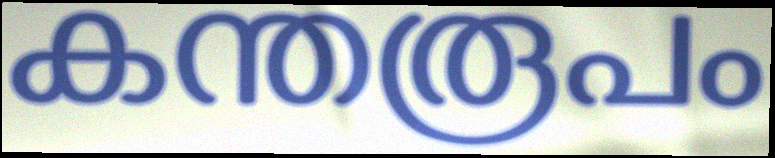
കന്തരൂപം